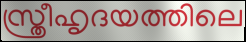
സ്ത്രീഹൃദയത്തിലെ